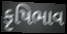
કૃષિભાવ